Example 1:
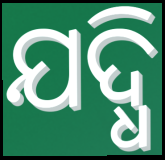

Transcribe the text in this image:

ଯଦ୍ଧି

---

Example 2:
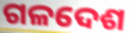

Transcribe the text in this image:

ଗଳଦେଶ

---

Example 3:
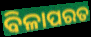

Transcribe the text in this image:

ବିଳାପରତ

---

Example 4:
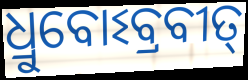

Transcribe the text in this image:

ଧ୍ରୁବୋଽବ୍ରବୀତ୍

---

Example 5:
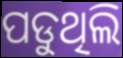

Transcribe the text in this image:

ପଡୁଥିଲି